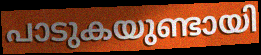
പാടുകയുണ്ടായി